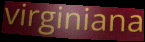
virginiana